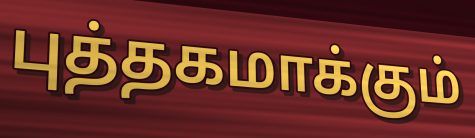
புத்தகமாக்கும்